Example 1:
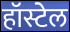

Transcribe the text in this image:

हॉस्टेल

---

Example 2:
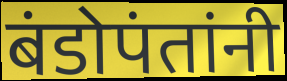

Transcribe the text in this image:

बंडोपंतांनी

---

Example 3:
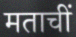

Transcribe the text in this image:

मताचीं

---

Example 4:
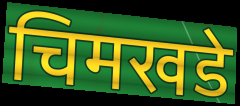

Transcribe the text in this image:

चिमखडे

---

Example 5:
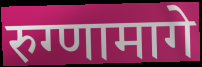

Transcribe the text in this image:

रुग्णामागे